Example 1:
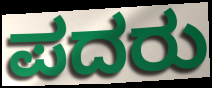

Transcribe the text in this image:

ಪದರು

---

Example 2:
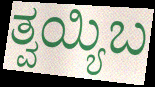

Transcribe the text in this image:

ತ್ವಯ್ಯಿಬ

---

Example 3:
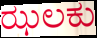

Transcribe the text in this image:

ಝಲಕು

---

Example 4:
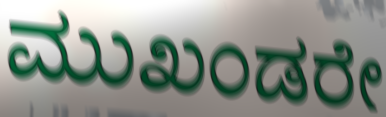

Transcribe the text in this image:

ಮುಖಂಡರೇ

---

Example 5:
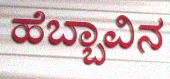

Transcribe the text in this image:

ಹೆಬ್ಬಾವಿನ